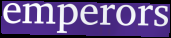
emperors